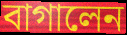
বাগালেন